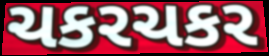
ચકરચકર